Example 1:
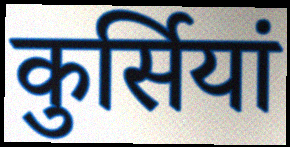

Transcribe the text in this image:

कुर्सियां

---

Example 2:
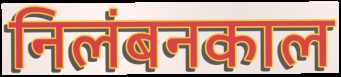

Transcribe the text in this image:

निलंबनकाल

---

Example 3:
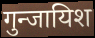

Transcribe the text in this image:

गुन्जायिश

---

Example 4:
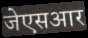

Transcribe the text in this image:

जेएसआर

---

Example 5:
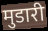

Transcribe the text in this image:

मुडारी